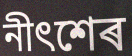
নীৎশেৰ